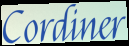
Cordiner